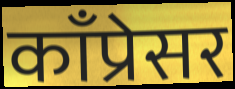
काँप्रेसर